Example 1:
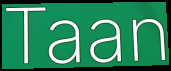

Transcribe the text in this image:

Taan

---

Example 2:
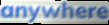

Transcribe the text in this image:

anywhere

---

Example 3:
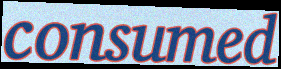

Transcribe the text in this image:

consumed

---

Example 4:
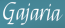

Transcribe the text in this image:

Gajaria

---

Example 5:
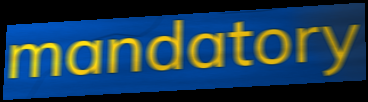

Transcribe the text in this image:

mandatory